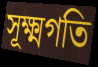
সূক্ষ্মগতি